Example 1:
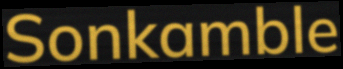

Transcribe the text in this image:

Sonkamble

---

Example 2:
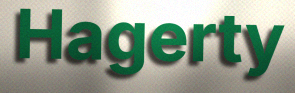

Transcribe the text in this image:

Hagerty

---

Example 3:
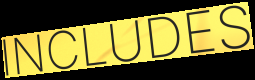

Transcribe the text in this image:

INCLUDES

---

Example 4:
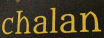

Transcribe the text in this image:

chalan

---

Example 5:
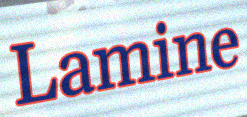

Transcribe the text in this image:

Lamine